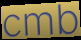
cmb